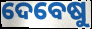
ଦେବେଷୁ